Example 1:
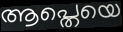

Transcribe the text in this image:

ആപ്തെയെ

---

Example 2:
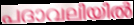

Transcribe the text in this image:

പദാവലിയിൽ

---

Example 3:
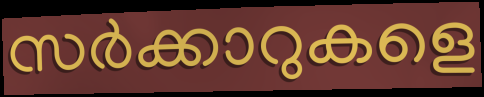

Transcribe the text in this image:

സർക്കാറുകളെ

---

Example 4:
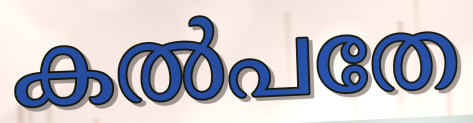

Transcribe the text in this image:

കൽപതേ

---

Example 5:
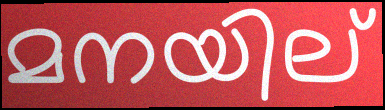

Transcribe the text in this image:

മനയില്